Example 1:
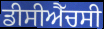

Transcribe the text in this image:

ਡੀਸੀਐੱਚਸੀ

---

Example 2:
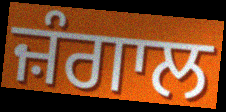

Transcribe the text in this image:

ਜ਼ੰਗਾਲ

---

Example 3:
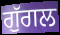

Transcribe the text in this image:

ਗੁੱਗਲ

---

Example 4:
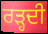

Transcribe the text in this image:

ਰੜ੍ਹਦੀ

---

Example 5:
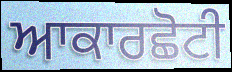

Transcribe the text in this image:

ਆਕਾਰਛੋਟੀ